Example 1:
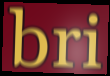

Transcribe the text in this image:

bri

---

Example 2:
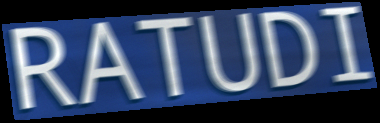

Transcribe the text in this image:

RATUDI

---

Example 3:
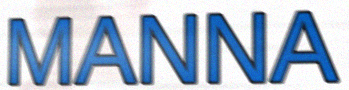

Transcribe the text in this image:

MANNA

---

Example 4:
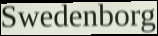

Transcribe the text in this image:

Swedenborg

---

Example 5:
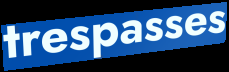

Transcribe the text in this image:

trespasses